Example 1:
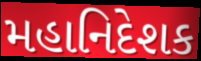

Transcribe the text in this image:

મહાનિદેશક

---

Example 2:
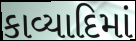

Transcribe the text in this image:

કાવ્યાદિમાં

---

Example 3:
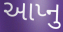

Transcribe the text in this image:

આપ્નુ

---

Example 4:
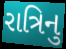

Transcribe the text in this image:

રાત્રિનુ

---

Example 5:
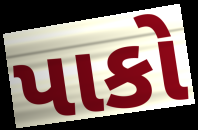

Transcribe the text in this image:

પાકો